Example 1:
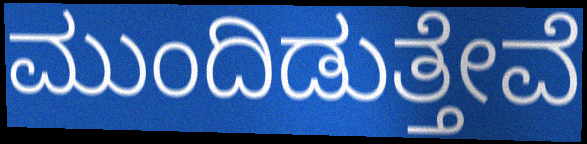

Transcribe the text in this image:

ಮುಂದಿಡುತ್ತೇವೆ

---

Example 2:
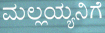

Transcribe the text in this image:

ಮಲ್ಲಯ್ಯನಿಗೆ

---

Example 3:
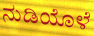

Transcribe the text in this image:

ನುಡಿಯೊಳೆ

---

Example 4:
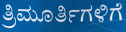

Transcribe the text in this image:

ತ್ರಿಮೂರ್ತಿಗಳಿಗೆ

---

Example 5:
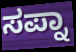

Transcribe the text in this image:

ಸಪ್ನಾ